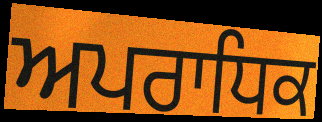
ਅਪਰਾਧਿਕ